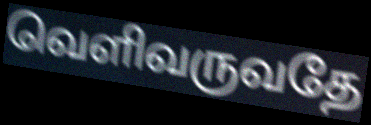
வெளிவருவதே